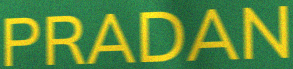
PRADAN